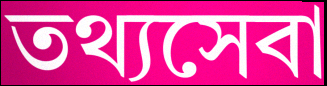
তথ্যসেবা